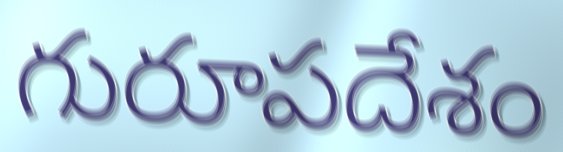
గురూపదేశం